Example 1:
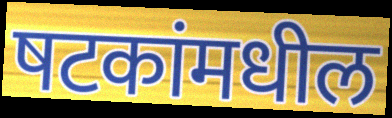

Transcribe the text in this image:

षटकांमधील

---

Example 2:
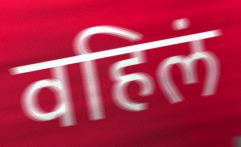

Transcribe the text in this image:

वहिलं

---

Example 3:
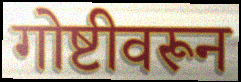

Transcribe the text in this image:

गोष्टीवरून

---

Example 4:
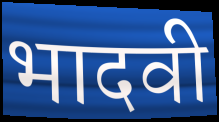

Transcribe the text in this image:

भादवी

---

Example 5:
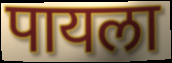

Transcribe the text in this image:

पायला